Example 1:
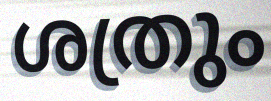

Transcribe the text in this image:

ശത്രും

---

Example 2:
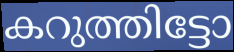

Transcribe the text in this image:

കറുത്തിട്ടോ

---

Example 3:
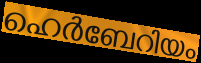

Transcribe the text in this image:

ഹെർബേറിയം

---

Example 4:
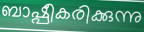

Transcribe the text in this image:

ബാഷ്പീകരിക്കുന്നു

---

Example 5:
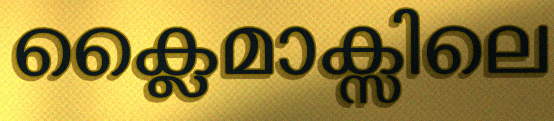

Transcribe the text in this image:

ക്ലൈമാക്സിലെ